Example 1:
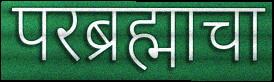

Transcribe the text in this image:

परब्रह्माचा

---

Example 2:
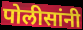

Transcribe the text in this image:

पोलीसांनी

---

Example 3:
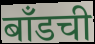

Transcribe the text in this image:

बाँडची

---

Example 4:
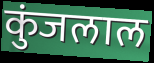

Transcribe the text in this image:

कुंजलाल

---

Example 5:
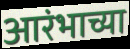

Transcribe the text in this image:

आरंभाच्या